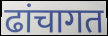
ढांचागत